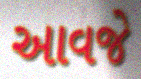
આવજે